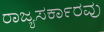
ರಾಜ್ಯಸರ್ಕಾರವು